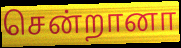
சென்றானா